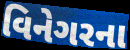
વિનેગરના